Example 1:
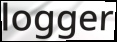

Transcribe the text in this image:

logger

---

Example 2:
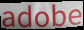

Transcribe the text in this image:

adobe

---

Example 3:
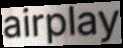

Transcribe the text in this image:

airplay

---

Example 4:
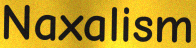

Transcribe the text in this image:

Naxalism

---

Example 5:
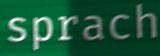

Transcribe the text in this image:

sprach